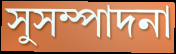
সুসম্পাদনা